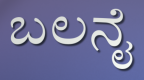
ಬಲನೈ